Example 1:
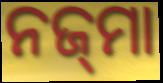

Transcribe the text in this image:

ନଜ୍‌ମା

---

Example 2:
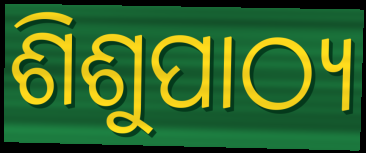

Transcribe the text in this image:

ଶିଶୁପାଠ୍ୟ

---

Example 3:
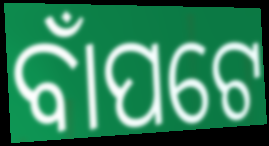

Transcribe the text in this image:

ବାଁପଟେ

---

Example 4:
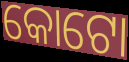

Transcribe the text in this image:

କୋଟୋ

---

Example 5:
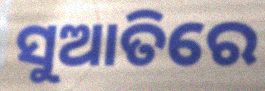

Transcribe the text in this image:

ସୁଆତିରେ